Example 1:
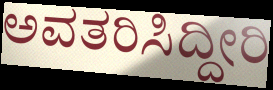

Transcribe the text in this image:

ಅವತರಿಸಿದ್ದೀರಿ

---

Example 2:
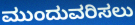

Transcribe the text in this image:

ಮುಂದುವರಿಸಲು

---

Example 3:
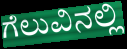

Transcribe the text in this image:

ಗೆಲುವಿನಲ್ಲಿ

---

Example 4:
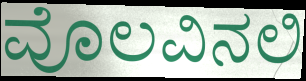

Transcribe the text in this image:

ವೊಲವಿನಲಿ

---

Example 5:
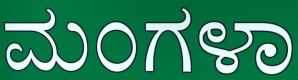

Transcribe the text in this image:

ಮಂಗಳಾ